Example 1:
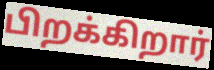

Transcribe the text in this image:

பிறக்கிறார்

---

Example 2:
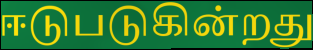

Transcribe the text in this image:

ஈடுபடுகின்றது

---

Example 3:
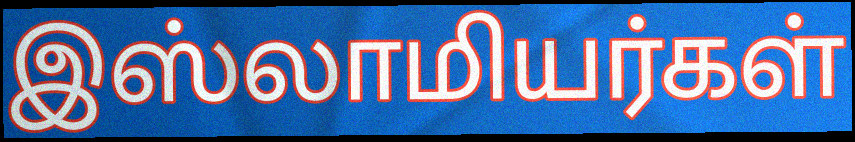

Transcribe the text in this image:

இஸ்லாமியர்கள்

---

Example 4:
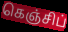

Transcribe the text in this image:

கெஞ்சிப்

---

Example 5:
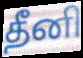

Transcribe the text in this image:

தீனி